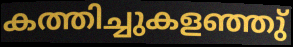
കത്തിച്ചുകളഞ്ഞു്